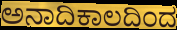
ಅನಾದಿಕಾಲದಿಂದ